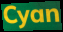
Cyan